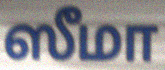
ஸீமா